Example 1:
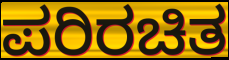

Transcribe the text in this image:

ಪರಿರಚಿತ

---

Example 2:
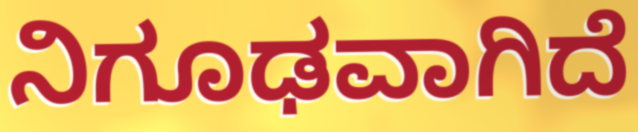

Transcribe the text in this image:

ನಿಗೂಢವಾಗಿದೆ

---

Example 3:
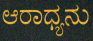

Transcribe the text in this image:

ಆರಾಧ್ಯನು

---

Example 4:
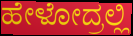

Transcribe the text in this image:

ಹೇಳೋದ್ರಲ್ಲಿ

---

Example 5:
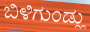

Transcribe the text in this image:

ಬಿಳಿಗುಂಡ್ಲು